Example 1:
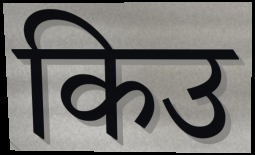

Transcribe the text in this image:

किउ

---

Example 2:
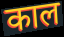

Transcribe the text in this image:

काल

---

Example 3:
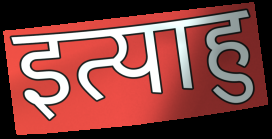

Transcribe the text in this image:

इत्याहु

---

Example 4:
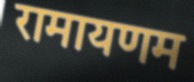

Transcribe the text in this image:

रामायणम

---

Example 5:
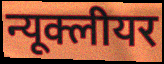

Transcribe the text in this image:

न्यूक्लीयर